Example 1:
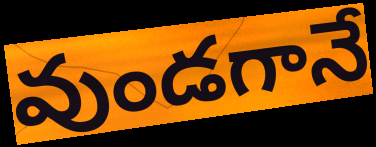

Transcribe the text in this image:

వుండగానే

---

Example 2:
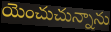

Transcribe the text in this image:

యెంచుచున్నాను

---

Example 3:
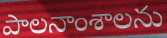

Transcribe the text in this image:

పాలనాంశాలను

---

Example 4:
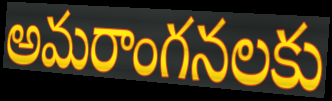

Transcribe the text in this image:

అమరాంగనలకు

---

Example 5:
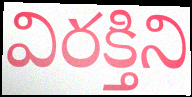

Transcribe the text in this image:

విరక్తిని